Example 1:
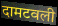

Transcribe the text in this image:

दामटवली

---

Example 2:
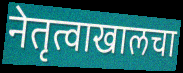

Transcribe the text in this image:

नेतृत्वाखालचा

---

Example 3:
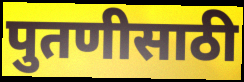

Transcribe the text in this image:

पुतणीसाठी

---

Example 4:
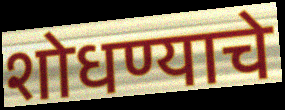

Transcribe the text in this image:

शोधण्याचे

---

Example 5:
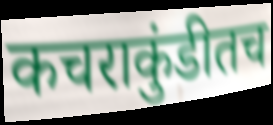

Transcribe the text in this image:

कचराकुंडीतच